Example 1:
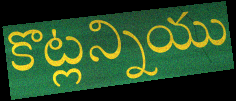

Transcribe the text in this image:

కొట్లన్నియు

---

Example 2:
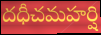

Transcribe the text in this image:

దధీచమహర్షి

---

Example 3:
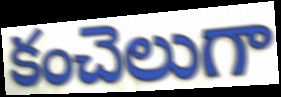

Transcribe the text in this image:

కంచెలుగా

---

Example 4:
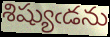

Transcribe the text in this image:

శిష్యుఁడను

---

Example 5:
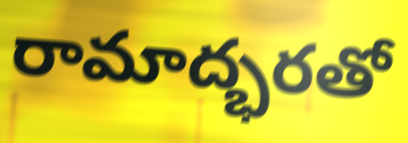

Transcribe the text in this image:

రామాద్భరతో